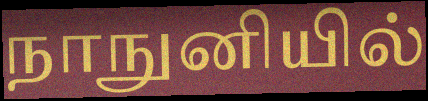
நாநுனியில்